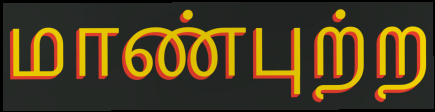
மாண்புற்ற